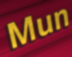
Mun